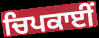
ਚਿਪਕਾਈਂ